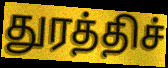
துரத்திச்